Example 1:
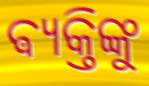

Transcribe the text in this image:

ଵ୍ୟକ୍ତିଙ୍କୁ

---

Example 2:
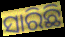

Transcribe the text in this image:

ସାରିଛି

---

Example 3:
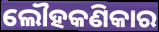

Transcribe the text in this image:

ଲୌହକଣିକାର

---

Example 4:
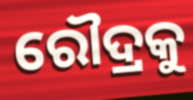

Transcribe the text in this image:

ରୌଦ୍ରକୁ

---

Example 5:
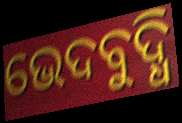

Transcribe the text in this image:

ଭେଦବୁଦ୍ଧି